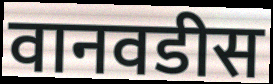
वानवडीस